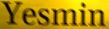
Yesmin